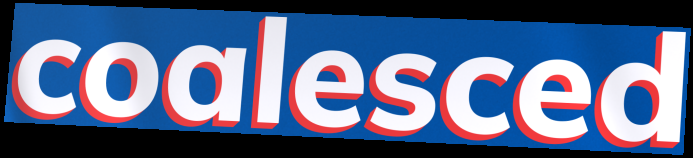
coalesced